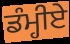
ਡੰਮ੍ਹੀਏ